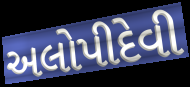
અલોપીદેવી